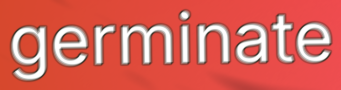
germinate